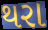
થરા